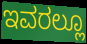
ಇವರಲ್ಲೂ